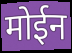
मोईन